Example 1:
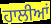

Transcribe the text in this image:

ਹਾਲੀਆਂ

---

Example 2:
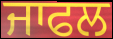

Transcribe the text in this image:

ਜਾਫਲ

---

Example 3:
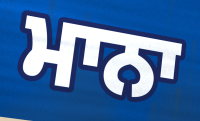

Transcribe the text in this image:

ਮਾਨਾ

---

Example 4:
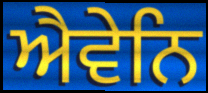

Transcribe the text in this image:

ਐਵੇਨਿ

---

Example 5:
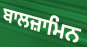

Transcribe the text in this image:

ਬਾਲਜ਼ਾਮਿਨ